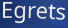
Egrets